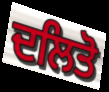
ਦਲਿਤੋ